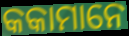
କକାମାନେ